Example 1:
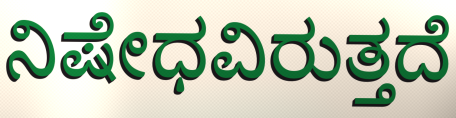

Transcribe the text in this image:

ನಿಷೇಧವಿರುತ್ತದೆ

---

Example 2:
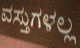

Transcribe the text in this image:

ವಸ್ತುಗಳಲ್ಲ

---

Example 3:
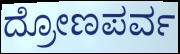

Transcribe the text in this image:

ದ್ರೋಣಪರ್ವ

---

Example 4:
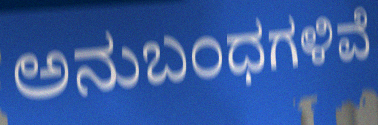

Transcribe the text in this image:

ಅನುಬಂಧಗಳಿವೆ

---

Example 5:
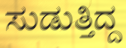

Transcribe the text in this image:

ಸುಡುತ್ತಿದ್ದ